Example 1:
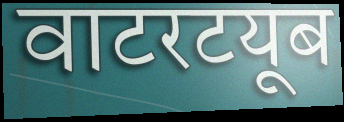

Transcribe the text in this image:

वाटरटयूब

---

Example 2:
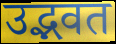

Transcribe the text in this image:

उद्भवत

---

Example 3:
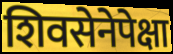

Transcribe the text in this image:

शिवसेनेपेक्षा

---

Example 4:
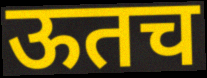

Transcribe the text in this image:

ऊतच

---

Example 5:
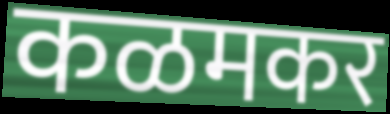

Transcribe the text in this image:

कळमकर